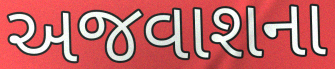
અજવાશના